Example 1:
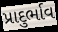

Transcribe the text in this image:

પ્રાદુર્ભાવ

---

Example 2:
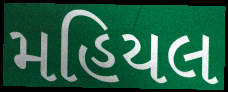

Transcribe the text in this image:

મહિયલ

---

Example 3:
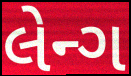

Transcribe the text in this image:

લેન્ગ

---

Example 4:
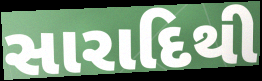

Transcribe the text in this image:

સારાદિથી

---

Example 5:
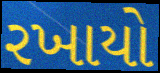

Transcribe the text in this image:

રખાયો